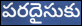
పరదైసుకు